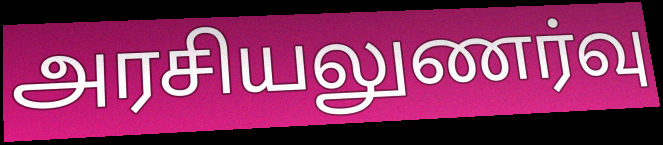
அரசியலுணர்வு